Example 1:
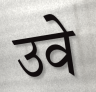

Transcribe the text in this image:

उवे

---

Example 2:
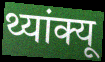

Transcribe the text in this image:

थ्यांक्यू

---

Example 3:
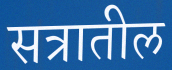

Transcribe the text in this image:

सत्रातील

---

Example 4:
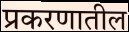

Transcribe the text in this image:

प्रकरणातील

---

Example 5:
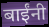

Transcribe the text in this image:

बाईंनी